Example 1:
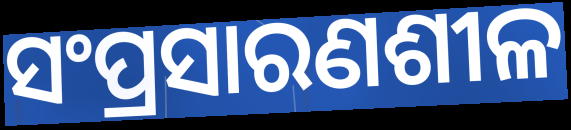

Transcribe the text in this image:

ସଂପ୍ରସାରଣଶୀଳ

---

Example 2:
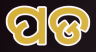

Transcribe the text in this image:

ପଡ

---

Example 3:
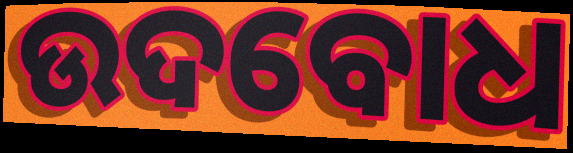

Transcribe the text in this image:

ଉଦବୋଧ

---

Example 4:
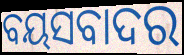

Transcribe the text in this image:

ବୟସବାଦର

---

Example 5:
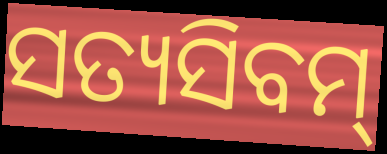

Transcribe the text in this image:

ସତ୍ୟସିବମ୍